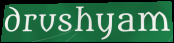
drushyam